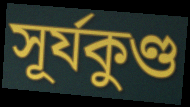
সূর্যকুণ্ড